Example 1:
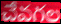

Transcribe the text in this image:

చేవగల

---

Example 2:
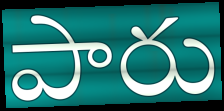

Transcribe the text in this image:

పారు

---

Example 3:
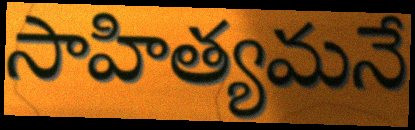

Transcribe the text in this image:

సాహిత్యమనే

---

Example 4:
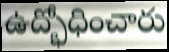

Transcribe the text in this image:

ఉద్భోధించారు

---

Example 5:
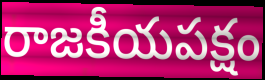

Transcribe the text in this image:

రాజకీయపక్షం